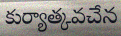
కుర్యాత్కవచేన